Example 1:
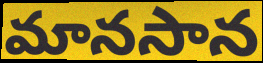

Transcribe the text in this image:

మానసాన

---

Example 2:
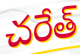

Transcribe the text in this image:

చరేత్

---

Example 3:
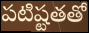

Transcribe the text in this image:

పటిష్టతతో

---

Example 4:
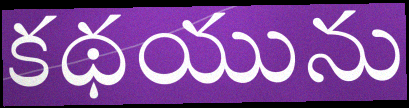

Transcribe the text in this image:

కథయును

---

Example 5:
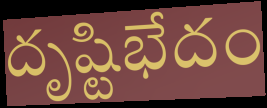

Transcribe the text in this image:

దృష్టిభేదం